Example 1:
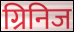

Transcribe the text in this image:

ग्रिनिज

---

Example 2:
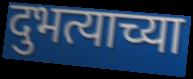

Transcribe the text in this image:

दुभत्याच्या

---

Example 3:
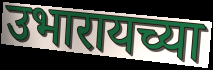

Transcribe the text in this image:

उभारायच्या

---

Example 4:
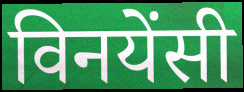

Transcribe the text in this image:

विनयेंसी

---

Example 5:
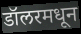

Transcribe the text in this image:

डॉलरमधून